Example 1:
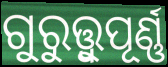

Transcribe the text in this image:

ଗୁରୁତ୍ତ୍ୱୁପୂର୍ଣ୍ଣ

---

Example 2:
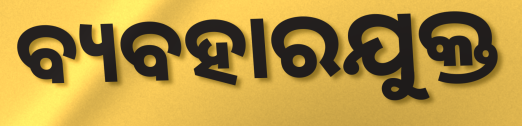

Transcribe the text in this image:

ବ୍ୟବହାରଯୁକ୍ତ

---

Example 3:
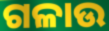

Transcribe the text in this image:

ଗଳାଉ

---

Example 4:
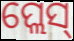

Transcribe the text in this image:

ପ୍ଲେସ୍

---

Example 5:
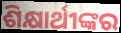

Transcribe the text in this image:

ଶିକ୍ଷାର୍ଥୀଙ୍କର